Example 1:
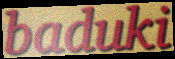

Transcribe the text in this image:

baduki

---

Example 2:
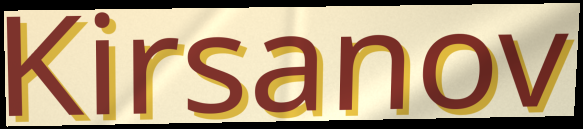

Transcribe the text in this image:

Kirsanov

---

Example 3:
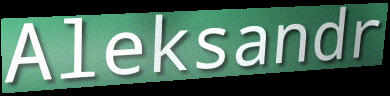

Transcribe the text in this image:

Aleksandr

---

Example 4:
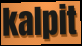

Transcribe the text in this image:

kalpit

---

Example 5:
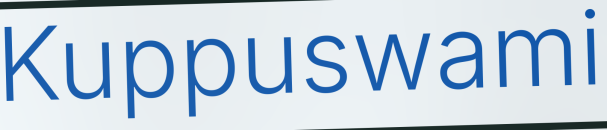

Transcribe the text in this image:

Kuppuswami